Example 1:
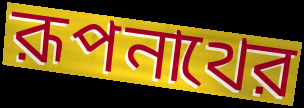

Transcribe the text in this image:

রূপনাথের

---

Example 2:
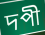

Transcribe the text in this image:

দপী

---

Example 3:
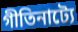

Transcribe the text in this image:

গীতিনাট্যে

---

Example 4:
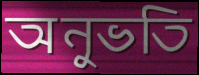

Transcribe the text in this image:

অনুভতি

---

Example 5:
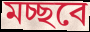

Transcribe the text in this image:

মচ্ছবে